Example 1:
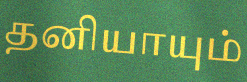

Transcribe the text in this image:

தனியாயும்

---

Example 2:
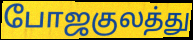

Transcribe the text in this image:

போஜகுலத்து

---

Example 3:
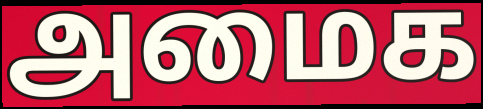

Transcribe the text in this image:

அமைக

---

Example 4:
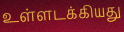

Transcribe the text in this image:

உள்ளடக்கியது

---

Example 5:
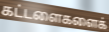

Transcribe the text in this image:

கட்டளைகளைக்